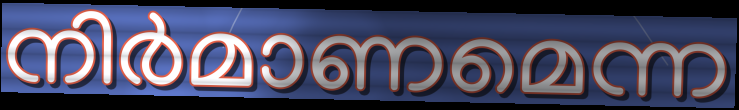
നിർമാണമെന്ന